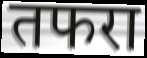
तफरा